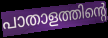
പാതാളത്തിന്റെ